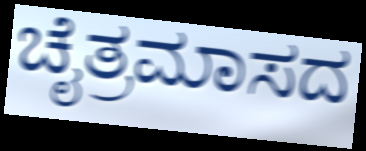
ಚೈತ್ರಮಾಸದ